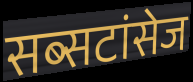
सब्सटांसेज